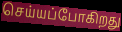
செய்யப்போகிறது